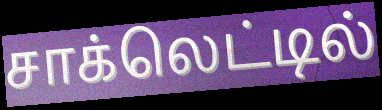
சாக்லெட்டில்